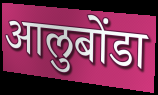
आलुबोंडा